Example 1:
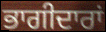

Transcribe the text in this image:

ਭਾਗੀਦਾਰਾਂ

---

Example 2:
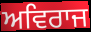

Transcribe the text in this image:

ਅਵਿਰਾਜ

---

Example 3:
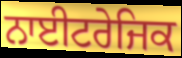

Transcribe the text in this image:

ਨਾਈਟਰੇਜਿਕ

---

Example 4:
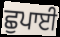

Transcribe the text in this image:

ਛੁਪਾਈ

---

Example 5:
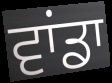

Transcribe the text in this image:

ਵਾਂਡਾ